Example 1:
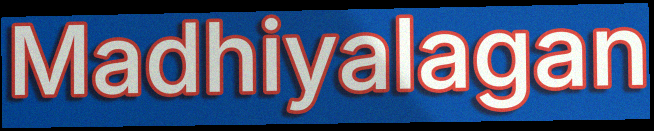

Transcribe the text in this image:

Madhiyalagan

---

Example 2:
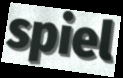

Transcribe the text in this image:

spiel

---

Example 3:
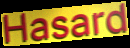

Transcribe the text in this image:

Hasard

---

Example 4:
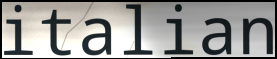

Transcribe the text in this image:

italian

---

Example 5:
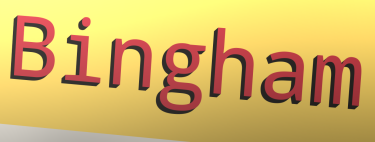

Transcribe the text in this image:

Bingham